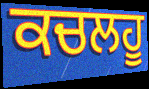
ਕਚਲਹੂ